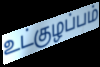
உட்குழப்பம்